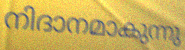
നിദാനമാകുന്നു